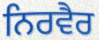
ਨਿਰਵੈਰ